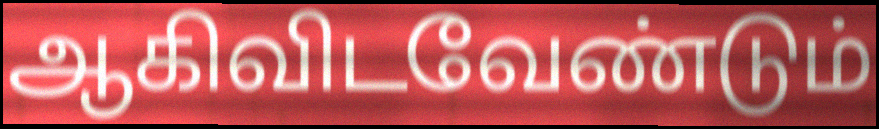
ஆகிவிடவேண்டும்